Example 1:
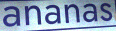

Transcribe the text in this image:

ananas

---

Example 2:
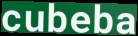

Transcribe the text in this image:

cubeba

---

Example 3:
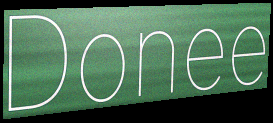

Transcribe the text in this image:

Donee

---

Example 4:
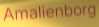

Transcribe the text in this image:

Amalienborg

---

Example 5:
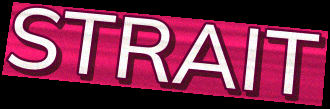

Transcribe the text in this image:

STRAIT